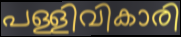
പള്ളിവികാരി